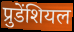
प्रुडेंशियल